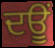
ਦਊਂ